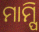
ମାମ୍ପି